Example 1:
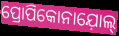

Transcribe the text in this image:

ପ୍ରୋପିକୋନାଯ଼ୋଲ୍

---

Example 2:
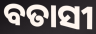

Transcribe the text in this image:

ବତାସୀ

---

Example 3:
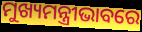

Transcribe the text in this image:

ମୁଖ୍ୟମନ୍ତ୍ରୀଭାବରେ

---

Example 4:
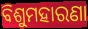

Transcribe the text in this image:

ବିଶୁମହାରଣା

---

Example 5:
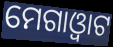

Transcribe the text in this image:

ମେଗାଓ୍ଵାଟ